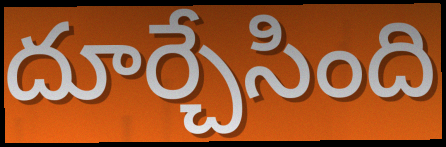
దూర్చేసింది